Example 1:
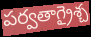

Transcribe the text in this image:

పర్వతాగ్రైశ్చ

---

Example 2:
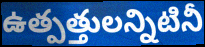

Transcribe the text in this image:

ఉత్పత్తులన్నిటినీ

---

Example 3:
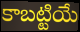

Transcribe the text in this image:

కాబట్టియే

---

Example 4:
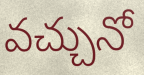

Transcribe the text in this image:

వచ్చునో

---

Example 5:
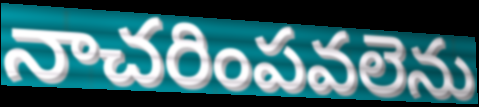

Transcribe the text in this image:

నాచరింపవలెను